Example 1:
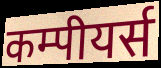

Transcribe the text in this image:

कम्पीयर्स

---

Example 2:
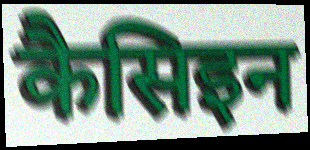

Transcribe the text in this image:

कैसिइन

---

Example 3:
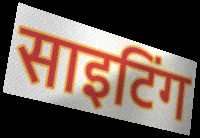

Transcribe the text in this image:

साइटिंग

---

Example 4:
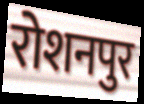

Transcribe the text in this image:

रोशनपुर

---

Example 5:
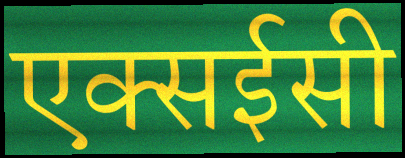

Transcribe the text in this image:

एक्सईसी